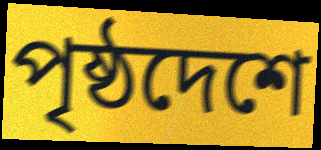
পৃষ্ঠদেশে